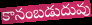
కానంబడుదువు